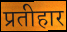
प्रतीहार